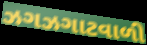
ઝગઝગાટવાળી